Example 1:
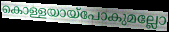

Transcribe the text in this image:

കൊള്ളയായ്പോകുമല്ലോ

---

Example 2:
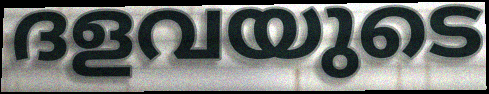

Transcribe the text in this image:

ദളവയുടെ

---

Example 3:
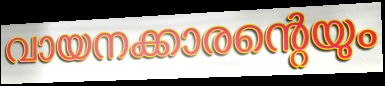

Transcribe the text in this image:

വായനക്കാരന്റെയും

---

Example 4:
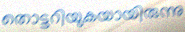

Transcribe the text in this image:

തൊട്ടറിയുകയായിരുന്നു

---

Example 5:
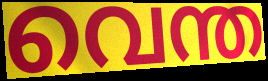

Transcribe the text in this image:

വെന്ത